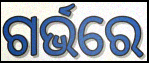
ଗର୍ଭରେ